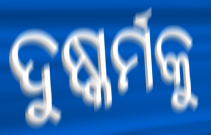
ଦୁଷ୍କର୍ମକୁ